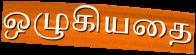
ஒழுகியதை